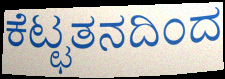
ಕೆಟ್ಟತನದಿಂದ